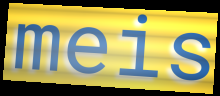
meis